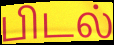
பிடல்